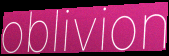
oblivion